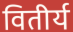
वितीर्य